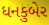
ધનકુબેર